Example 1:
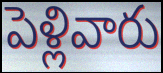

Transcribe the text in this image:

పెళ్లివారు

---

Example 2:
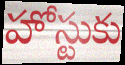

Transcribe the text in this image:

హోస్టుకు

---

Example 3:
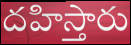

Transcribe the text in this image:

దహిస్తారు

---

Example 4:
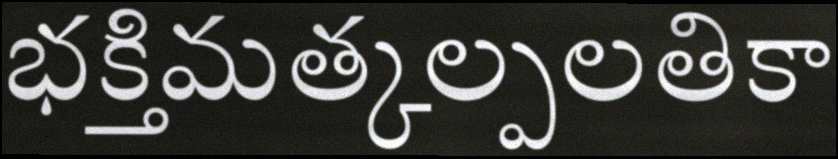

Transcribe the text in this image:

భక్తిమత్కల్పలతికా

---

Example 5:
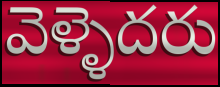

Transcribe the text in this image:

వెళ్ళెదరు